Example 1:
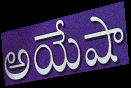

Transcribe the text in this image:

అయేషా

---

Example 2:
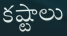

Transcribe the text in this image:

కష్టాలు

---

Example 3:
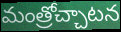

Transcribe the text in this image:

మంత్రోచ్చాటన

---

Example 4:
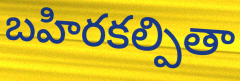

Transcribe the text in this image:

బహిరకల్పితా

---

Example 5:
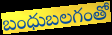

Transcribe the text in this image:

బంధుబలగంతో